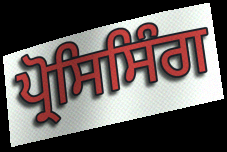
ਪ੍ਰੋਸਿਸਿੰਗ